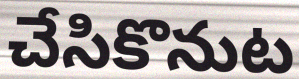
చేసికొనుట